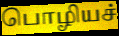
பொழியச்